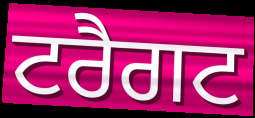
ਟਰੈਗਟ